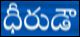
ధీరుడౌ